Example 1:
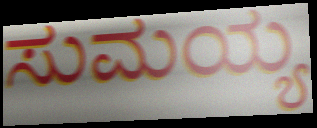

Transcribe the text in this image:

ಸುಮಯ್ಯ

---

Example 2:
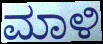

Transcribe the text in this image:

ಮಾಳಿ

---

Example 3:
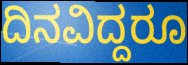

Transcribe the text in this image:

ದಿನವಿದ್ದರೂ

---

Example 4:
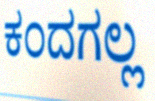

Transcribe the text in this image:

ಕಂದಗಲ್ಲ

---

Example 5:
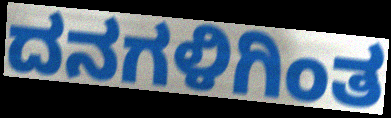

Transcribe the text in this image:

ದನಗಳಿಗಿಂತ